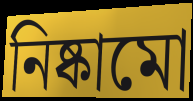
নিষ্কামো